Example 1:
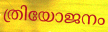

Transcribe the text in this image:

ത്രിയോജനം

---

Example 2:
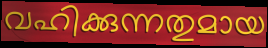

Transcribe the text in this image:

വഹിക്കുന്നതുമായ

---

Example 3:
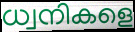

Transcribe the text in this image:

ധ്വനികളെ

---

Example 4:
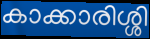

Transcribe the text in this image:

കാക്കാരിശ്ശി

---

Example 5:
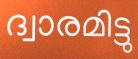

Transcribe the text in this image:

ദ്വാരമിട്ടു